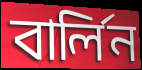
বার্লিন